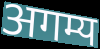
अगम्य